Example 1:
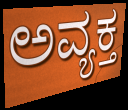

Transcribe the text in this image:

ಅವ್ಯಕ್ತ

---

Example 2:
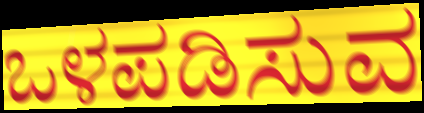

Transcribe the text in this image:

ಒಳಪಡಿಸುವ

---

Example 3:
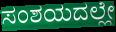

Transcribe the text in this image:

ಸಂಶಯದಲ್ಲೇ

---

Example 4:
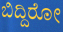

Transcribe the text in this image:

ಬಿದ್ದಿರೋ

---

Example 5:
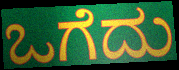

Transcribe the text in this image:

ಒಗೆದು